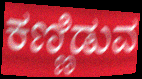
ಕಣ್ಣಿಡುವ